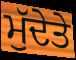
ਮੁੱਦੇਤੇ